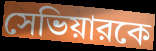
সেভিয়ারকে